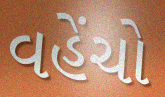
વહેંચો